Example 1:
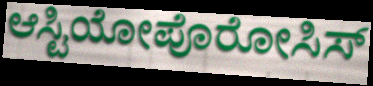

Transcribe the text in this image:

ಆಸ್ಟಿಯೋಪೊರೋಸಿಸ್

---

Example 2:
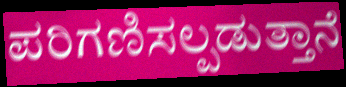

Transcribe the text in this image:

ಪರಿಗಣಿಸಲ್ಪಡುತ್ತಾನೆ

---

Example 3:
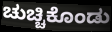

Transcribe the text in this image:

ಚುಚ್ಚಿಕೊಂಡು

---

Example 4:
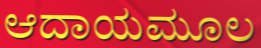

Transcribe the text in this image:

ಆದಾಯಮೂಲ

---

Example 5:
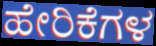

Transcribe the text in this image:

ಹೇರಿಕೆಗಳ